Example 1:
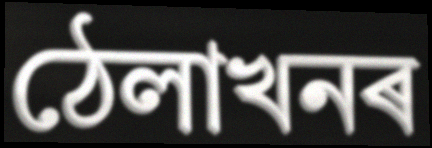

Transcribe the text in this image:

ঠেলাখনৰ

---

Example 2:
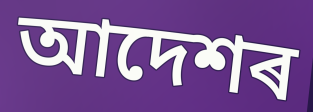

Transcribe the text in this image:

আদেশৰ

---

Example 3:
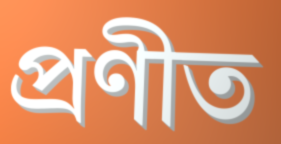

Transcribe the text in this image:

প্ৰণীত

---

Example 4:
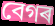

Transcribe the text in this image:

বেগৰ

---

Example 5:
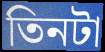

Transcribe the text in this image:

তিনটা